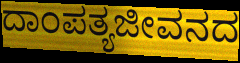
ದಾಂಪತ್ಯಜೀವನದ